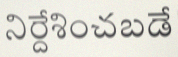
నిర్దేశించబడే